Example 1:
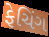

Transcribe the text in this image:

ફેચિંગ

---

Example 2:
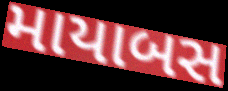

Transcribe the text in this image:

માયાબસ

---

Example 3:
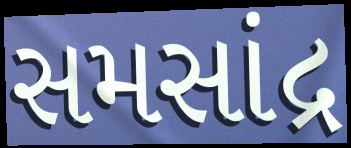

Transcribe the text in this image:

સમસાંદ્ર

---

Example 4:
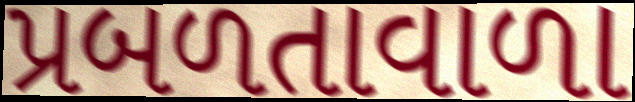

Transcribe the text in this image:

પ્રબળતાવાળા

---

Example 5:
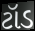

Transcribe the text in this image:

ટૉડ